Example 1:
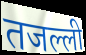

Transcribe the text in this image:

तजल्ली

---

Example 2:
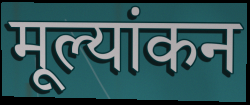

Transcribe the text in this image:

मूल्यांकन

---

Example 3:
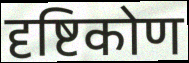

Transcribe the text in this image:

दृष्टिकोण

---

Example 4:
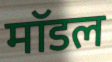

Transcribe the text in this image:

मॉडल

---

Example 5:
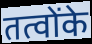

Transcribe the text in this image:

तत्वोंके